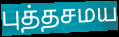
புத்தசமய